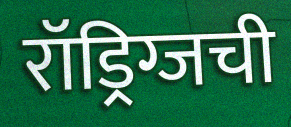
रॉड्रिग्जची